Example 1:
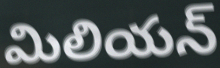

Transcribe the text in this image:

మిలియన్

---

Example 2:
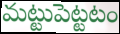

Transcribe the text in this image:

మట్టుపెట్టటం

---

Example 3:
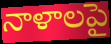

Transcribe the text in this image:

నాళాలపై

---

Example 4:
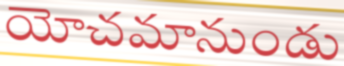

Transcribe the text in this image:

యోచమానుండు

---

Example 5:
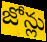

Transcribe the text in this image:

జోన్లు